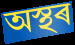
অস্থৰ